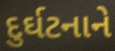
દુર્ઘટનાને